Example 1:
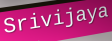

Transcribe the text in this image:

Srivijaya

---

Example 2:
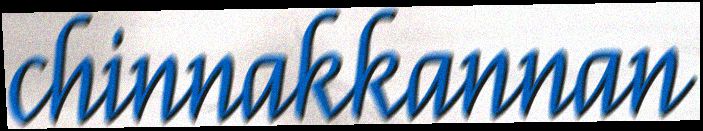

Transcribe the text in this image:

chinnakkannan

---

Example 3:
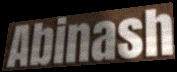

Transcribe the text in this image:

Abinash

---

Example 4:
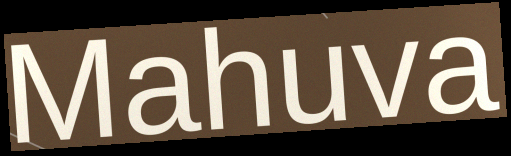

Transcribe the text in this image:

Mahuva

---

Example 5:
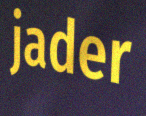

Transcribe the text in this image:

jader